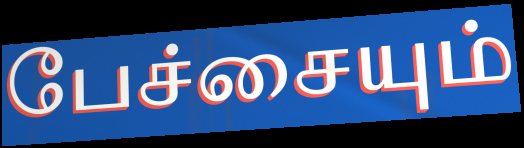
பேச்சையும்